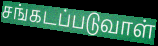
சங்கடப்படுவாள்